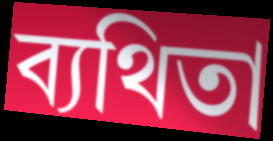
ব্যথিতা